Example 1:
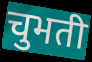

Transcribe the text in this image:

चुभती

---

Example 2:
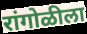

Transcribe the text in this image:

रांगोळीला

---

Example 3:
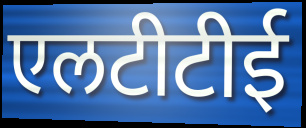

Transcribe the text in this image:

एलटीटीई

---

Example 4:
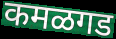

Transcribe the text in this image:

कमळगड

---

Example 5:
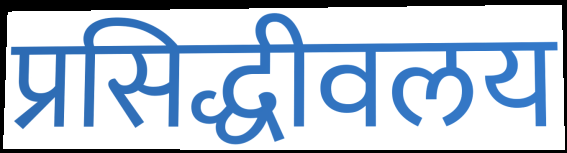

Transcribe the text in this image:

प्रसिद्धीवलय